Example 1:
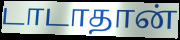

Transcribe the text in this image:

டாடாதான்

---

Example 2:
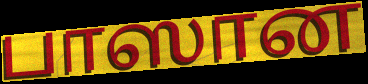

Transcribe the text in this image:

பாஸான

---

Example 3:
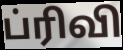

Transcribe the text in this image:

ப்ரிவி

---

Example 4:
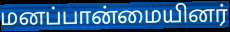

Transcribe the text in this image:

மனப்பான்மையினர்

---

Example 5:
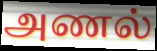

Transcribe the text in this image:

அணல்